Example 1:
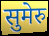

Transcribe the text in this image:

सुमेरु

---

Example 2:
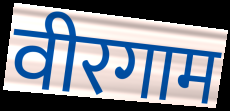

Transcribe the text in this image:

वीरगाम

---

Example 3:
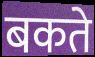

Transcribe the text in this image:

बकते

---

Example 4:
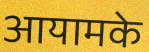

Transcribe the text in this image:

आयामके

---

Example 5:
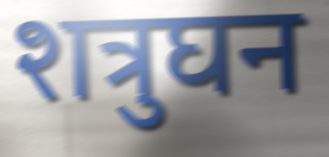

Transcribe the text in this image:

शत्रुघन